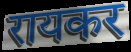
रायकर